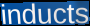
inducts